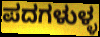
ಪದಗಳುಳ್ಳ